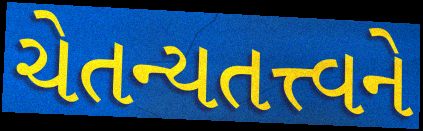
ચેતન્યતત્ત્વને